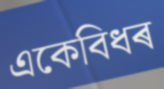
একেবিধৰ